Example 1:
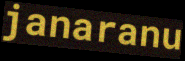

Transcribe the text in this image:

janaranu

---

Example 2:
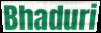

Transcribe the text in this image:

Bhaduri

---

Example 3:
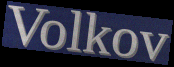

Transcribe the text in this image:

Volkov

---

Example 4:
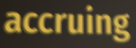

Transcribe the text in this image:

accruing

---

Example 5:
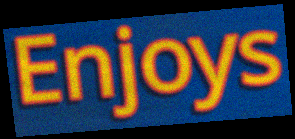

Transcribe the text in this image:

Enjoys